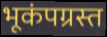
भूकंपग्रस्त